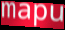
mapu